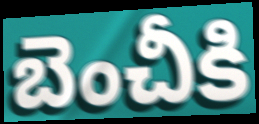
బెంచీకి